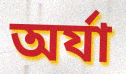
অর্যা